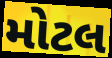
મોટલ